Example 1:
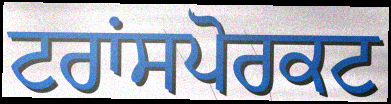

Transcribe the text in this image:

ਟਰਾਂਸਪੋਰਕਟ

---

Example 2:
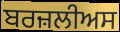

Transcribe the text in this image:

ਬਰਜ਼ਲੀਅਸ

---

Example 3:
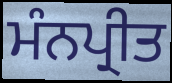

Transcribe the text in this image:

ਮੰਨਪ੍ਰੀਤ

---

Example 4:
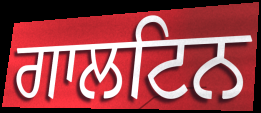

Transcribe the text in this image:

ਗਾਲਟਿਨ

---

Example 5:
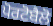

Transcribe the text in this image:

ਪੋਰਟੋਬੈਲੋ